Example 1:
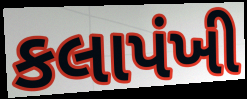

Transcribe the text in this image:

કલાપંખી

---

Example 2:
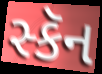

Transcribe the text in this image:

સ્કૅન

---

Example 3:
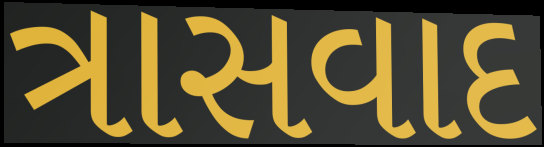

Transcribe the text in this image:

ત્રાસવાદ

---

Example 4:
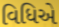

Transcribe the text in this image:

વિધિએ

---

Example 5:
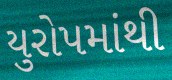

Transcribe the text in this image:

યુરોપમાંથી